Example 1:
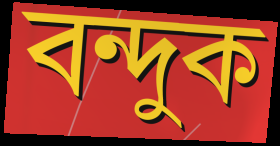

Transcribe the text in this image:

বন্দুক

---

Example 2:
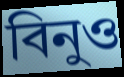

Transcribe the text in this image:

বিনুও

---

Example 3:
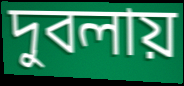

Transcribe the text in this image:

দুবলায়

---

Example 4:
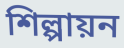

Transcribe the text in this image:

শিল্পায়ন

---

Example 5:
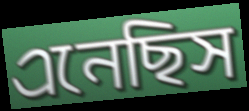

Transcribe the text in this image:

এনেছিস